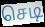
செடி